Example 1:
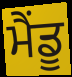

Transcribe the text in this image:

ਮੈਂਡੂ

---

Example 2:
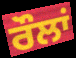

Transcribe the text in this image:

ਰੌਲਾਂ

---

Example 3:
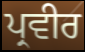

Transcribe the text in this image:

ਪ੍ਰਵੀਰ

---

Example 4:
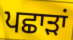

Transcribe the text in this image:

ਪਛਾੜਾਂ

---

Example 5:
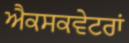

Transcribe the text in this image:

ਐਕਸਕਵੇਟਰਾਂ